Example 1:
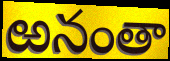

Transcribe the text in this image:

ఱనంతా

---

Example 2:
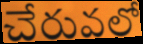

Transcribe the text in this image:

చేరువలో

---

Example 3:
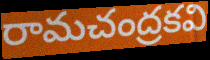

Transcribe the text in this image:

రామచంద్రకవి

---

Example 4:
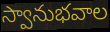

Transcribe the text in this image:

స్వానుభవాల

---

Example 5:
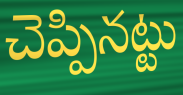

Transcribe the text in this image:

చెప్పినట్టు